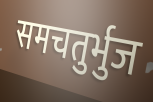
समचतुर्भुज